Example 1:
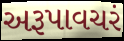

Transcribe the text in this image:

અરૂપાવચરં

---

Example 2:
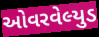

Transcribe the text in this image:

ઓવરવેલ્યુડ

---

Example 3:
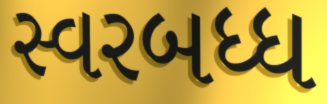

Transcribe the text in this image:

સ્વરબધ્ધ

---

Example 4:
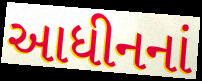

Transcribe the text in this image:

આધીનનાં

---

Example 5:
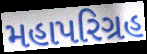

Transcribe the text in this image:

મહાપરિગ્રહ